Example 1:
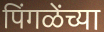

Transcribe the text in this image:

पिंगळेंच्या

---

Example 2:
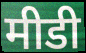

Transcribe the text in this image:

मीडी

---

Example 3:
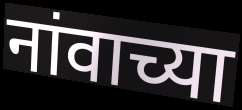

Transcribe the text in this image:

नांवाच्या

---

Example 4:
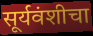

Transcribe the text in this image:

सूर्यवंशीचा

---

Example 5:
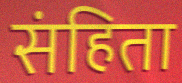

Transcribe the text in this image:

संहिता